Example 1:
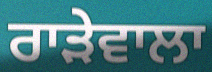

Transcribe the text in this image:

ਰਾੜੇਵਾਲਾ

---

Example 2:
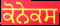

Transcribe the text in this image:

ਕੋਨੇਕਸ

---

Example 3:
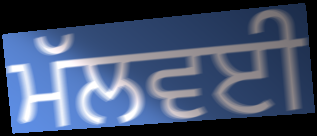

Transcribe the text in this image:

ਮੱਲਵਈ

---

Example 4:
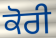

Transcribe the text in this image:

ਕੋਰੀ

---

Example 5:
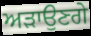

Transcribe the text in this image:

ਅੜਾਉਣਗੇ